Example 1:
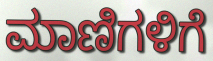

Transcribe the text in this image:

ಮಾಣಿಗಳಿಗೆ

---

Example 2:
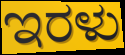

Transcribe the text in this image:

ಇರಳು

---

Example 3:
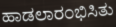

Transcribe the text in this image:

ಹಾಡಲಾರಂಭಿಸಿತು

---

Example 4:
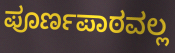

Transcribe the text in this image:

ಪೂರ್ಣಪಾಠವಲ್ಲ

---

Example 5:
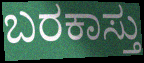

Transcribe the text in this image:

ಬರಕಾಸ್ತು